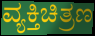
ವ್ಯಕ್ತಿಚಿತ್ರಣ